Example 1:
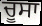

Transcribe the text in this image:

ਚੂਸਾ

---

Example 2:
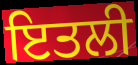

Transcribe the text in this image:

ਇਤਲੀ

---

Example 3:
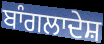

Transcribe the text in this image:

ਬਾੰਗਲਾਦੇਸ਼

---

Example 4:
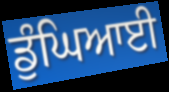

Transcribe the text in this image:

ਡੁੰਘਿਆਈ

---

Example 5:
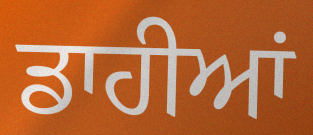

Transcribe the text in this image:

ਡਾਹੀਆਂ